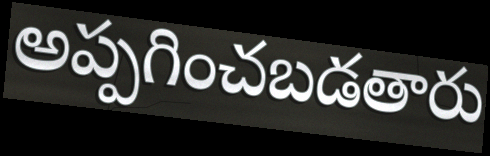
అప్పగించబడతారు